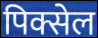
पिक्सेल